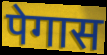
पेगास